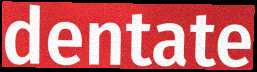
dentate